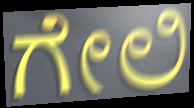
ಗೇಲಿ